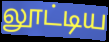
லூட்டிய